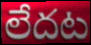
లేదట